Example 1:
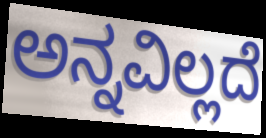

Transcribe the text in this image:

ಅನ್ನವಿಲ್ಲದೆ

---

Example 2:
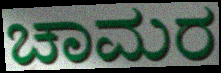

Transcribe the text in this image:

ಚಾಮರ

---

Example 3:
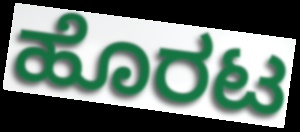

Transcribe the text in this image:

ಹೊರಟ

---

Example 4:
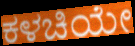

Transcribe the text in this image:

ಕಳಚಿಯೇ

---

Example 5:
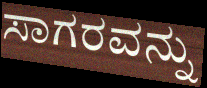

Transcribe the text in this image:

ಸಾಗರವನ್ನು